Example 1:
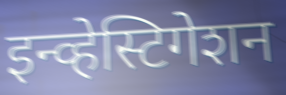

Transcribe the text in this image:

इन्व्हेस्टिगेशन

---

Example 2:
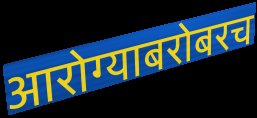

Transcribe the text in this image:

आरोग्याबरोबरच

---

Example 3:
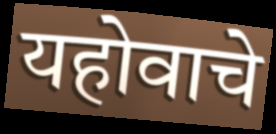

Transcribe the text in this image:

यहोवाचे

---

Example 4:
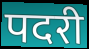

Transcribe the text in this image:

पदरी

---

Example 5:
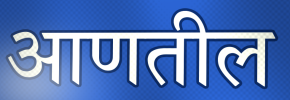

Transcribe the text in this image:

आणतील